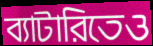
ব্যাটারিতেও